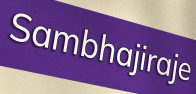
Sambhajiraje